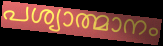
പശ്യാത്മാനം